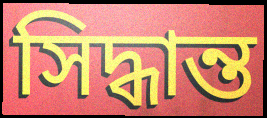
সিদ্ধান্ত